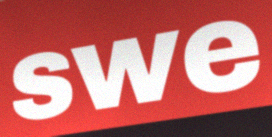
swe